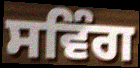
ਸਵਿੰਗ